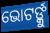
ଭୋଟର୍ଙ୍କୁ